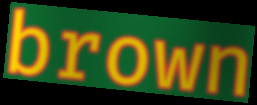
brown